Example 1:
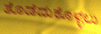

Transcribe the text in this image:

ತೊಡೆದುಕೊಳ್ಳಲು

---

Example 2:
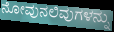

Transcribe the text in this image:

ನೋವುನಲಿವುಗಳನ್ನು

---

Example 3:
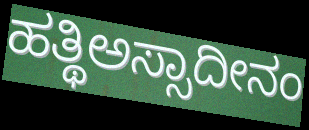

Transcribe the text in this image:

ಹತ್ಥಿಅಸ್ಸಾದೀನಂ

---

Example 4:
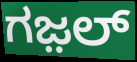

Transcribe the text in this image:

ಗಜ಼ಲ್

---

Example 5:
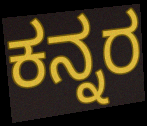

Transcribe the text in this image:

ಕನ್ನರ